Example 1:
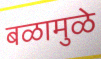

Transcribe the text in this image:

बळामुळे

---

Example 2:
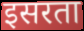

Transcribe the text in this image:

इसरता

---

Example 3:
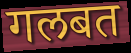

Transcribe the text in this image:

गलबत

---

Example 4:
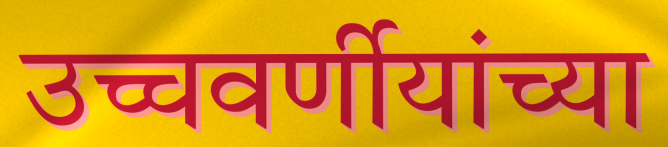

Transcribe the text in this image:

उच्चवर्णीयांच्या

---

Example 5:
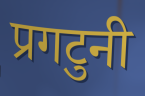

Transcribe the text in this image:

प्रगटुनी